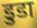
डुडा